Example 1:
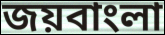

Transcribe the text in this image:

জয়বাংলা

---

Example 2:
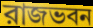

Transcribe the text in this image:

রাজভবন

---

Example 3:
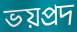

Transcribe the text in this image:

ভয়প্রদ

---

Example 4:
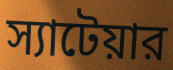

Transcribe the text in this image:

স্যাটেয়ার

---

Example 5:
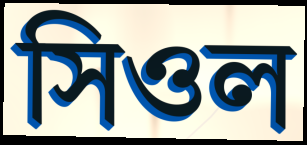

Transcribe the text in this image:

সিওল